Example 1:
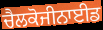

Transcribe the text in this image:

ਚੈਲਕੋਜੀਨਾਈਡ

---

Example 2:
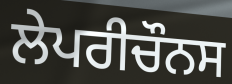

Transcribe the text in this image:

ਲੇਪਰੀਚੌਨਸ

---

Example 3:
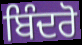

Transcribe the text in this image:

ਬਿੰਦਰੋ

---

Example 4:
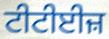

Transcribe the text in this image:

ਟੀਟੀਈਜ਼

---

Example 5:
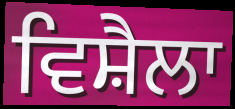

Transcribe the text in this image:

ਵਿਸ਼ੈਲਾ